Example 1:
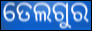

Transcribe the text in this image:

ତେଲଗୁର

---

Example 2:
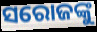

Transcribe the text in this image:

ସରୋଜଙ୍କୁ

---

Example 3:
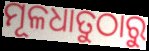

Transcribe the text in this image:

ମୂଳଧାତୁଠାରୁ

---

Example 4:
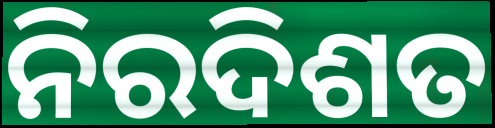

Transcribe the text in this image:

ନିରଦିଶତ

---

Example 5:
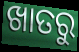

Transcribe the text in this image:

ଖାତରୁ